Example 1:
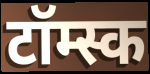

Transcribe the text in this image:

टॉम्स्क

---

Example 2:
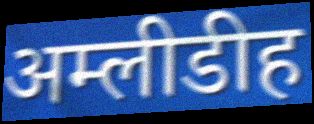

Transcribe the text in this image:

अम्लीडीह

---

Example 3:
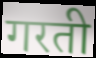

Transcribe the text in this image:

गरती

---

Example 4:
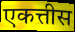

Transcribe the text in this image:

एकत्तीस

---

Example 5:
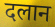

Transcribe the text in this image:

दलान